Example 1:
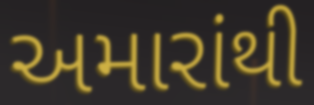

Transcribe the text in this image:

અમારાંથી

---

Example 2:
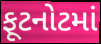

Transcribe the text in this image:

ફૂટનોટમાં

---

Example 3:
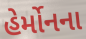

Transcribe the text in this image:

હેર્મોનના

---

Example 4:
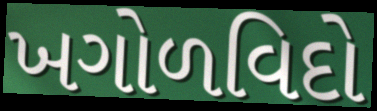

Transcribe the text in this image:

ખગોળવિદો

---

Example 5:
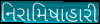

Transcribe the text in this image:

નિરામિષાહારી